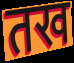
तख